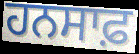
ਹਨਸਾਫ਼